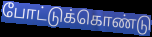
போட்டுக்கொண்டு